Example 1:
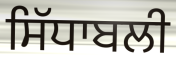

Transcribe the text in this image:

ਸਿੱਧਾਬਲੀ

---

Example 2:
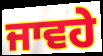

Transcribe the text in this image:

ਜਾਵਹੇ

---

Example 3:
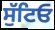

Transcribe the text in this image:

ਸੁੱਟਿਓ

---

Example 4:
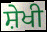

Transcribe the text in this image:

ਸ਼ੇਖੀ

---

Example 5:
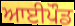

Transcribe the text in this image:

ਆਈਪੌਡ